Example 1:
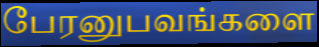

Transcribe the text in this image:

பேரனுபவங்களை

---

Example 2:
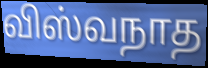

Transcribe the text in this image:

விஸ்வநாத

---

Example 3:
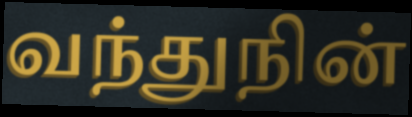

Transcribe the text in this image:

வந்துநின்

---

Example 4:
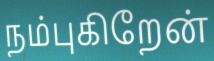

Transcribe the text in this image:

நம்புகிறேன்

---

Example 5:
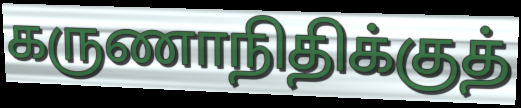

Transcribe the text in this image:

கருணாநிதிக்குத்